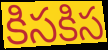
కిసకిస